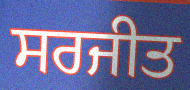
ਸਰਜੀਤ